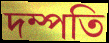
দম্পতি